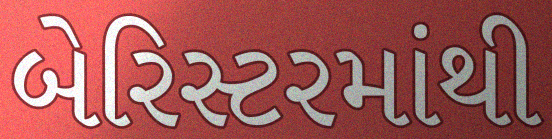
બેરિસ્ટરમાંથી